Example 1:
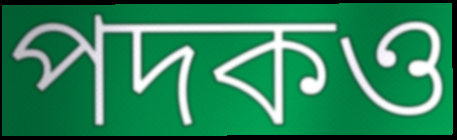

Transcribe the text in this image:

পদকও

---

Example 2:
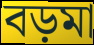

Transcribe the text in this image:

বড়মা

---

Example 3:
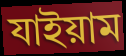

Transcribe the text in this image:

যাইয়াম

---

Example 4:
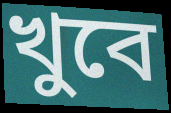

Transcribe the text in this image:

খুবে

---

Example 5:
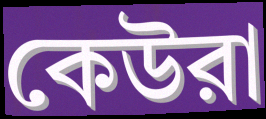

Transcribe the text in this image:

কেউরা